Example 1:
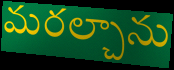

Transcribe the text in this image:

మరల్చాను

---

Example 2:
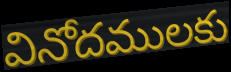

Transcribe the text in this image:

వినోదములకు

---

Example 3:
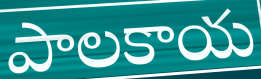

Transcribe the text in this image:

పాలకాయ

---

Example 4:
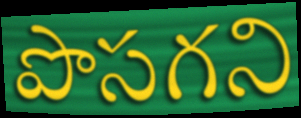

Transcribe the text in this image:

పొసగని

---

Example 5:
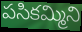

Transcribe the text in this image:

పసికమ్మిని